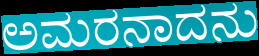
ಅಮರನಾದನು